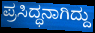
ಪ್ರಸಿದ್ಧನಾಗಿದ್ದು